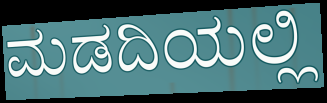
ಮಡದಿಯಲ್ಲಿ